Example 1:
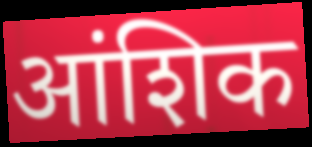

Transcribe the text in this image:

आंशिक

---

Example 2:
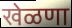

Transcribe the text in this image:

खेळणा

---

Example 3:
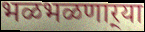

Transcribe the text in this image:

भळभळणार्या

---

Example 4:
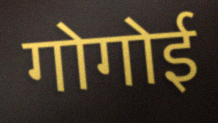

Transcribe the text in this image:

गोगोई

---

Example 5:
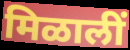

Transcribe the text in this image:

मिळालीं